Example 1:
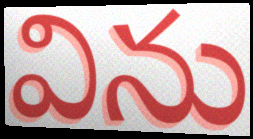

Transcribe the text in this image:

విను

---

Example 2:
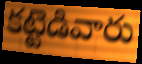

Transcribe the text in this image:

కట్టెడివారు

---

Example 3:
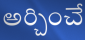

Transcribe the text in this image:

అర్చించే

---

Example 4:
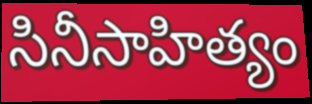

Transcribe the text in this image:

సినీసాహిత్యం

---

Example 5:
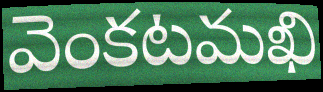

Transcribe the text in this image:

వెంకటమఖి